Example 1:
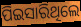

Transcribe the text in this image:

ପିଇସାରିଥିଲେ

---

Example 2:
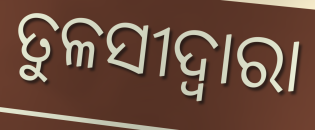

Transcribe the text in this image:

ତୁଳସୀଦ୍ବାରା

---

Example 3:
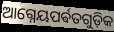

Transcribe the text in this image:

ଆଗ୍ନେୟପର୍ଵତଗୁଡ଼ିକ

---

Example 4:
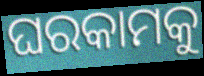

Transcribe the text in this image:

ଘରକାମକୁ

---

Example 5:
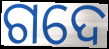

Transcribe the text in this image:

ଗଦେ